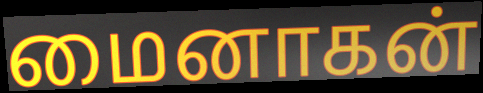
மைனாகன்